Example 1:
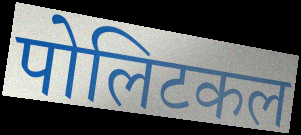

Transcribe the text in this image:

पोलिटकल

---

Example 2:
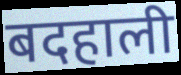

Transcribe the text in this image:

बदहाली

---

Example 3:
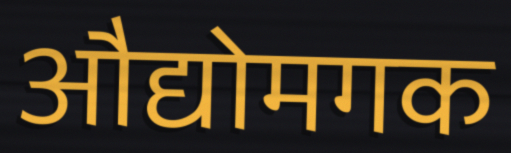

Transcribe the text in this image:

औद्योमगक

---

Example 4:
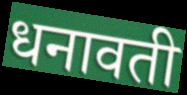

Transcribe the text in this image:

धनावती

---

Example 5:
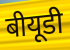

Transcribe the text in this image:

बीयूडी